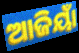
ଆଜିୟାଁ